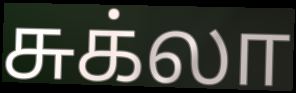
சுக்லா